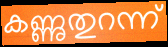
കണ്ണുതുറന്ന്